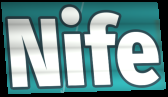
Nife